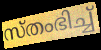
സ്തംഭിച്ച്